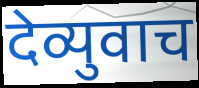
देव्युवाच